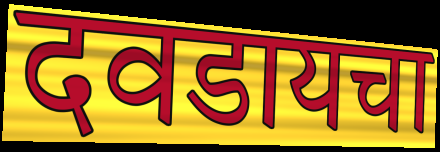
दवडायचा